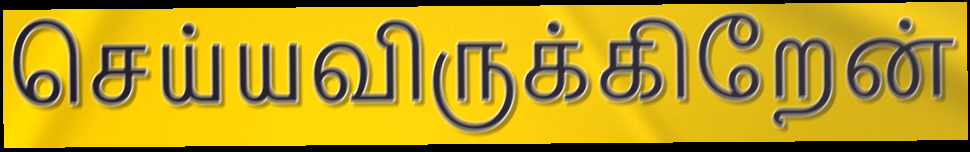
செய்யவிருக்கிறேன்